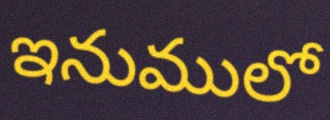
ఇనుములో